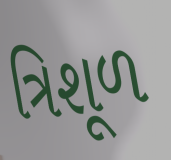
ત્રિશૂળ